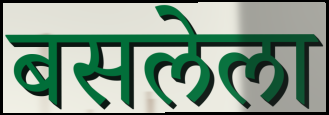
बसलेला